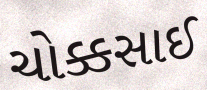
ચોક્કસાઈ